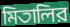
মিতালির